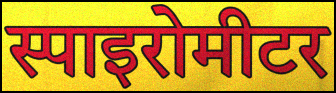
स्पाइरोमीटर